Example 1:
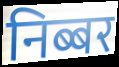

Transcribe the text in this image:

निब्बर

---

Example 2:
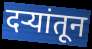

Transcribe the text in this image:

दऱ्यांतून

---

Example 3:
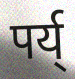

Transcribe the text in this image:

पर्य्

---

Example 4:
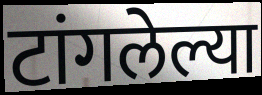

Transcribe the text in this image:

टांगलेल्या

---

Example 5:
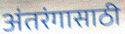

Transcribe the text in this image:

अंतरंगासाठी